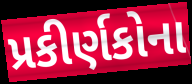
પ્રકીર્ણકોના